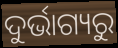
ଦୁର୍ଭାଗ୍ୟରୁ